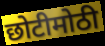
छोटीमोठी